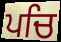
ਪਚਿ